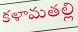
కళామతల్లి